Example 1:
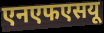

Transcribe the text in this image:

एनएफएसयू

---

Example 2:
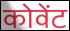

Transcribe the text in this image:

कोवेंट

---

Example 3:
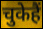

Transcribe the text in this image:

चुकेहैं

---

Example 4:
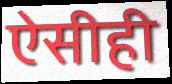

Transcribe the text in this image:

ऐसीही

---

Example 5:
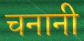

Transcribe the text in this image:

चनानी